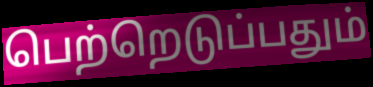
பெற்றெடுப்பதும்